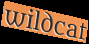
wildcat